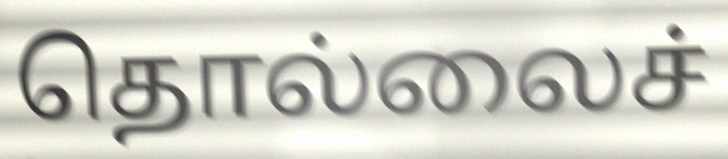
தொல்லைச்